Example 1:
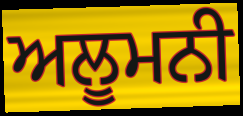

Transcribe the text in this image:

ਅਲੂਮਨੀ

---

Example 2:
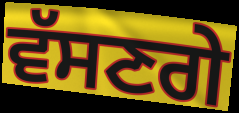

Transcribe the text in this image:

ਵੱਸਣਗੇ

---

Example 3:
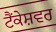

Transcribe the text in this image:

ਟੈਂਕੇਸ਼ਵਰ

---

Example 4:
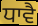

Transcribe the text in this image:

ਧਾਵੈ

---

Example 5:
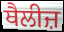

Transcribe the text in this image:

ਥੈਲੀਜ਼